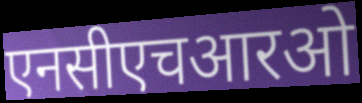
एनसीएचआरओ